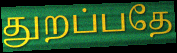
துறப்பதே